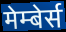
मेम्बेर्स